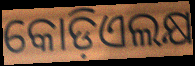
କୋଡ଼ିଏଲକ୍ଷ